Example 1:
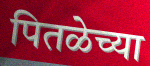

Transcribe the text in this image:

पितळेच्या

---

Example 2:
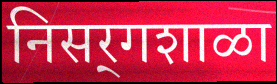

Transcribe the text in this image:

निसर्गशाळा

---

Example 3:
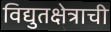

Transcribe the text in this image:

विद्युतक्षेत्राची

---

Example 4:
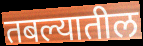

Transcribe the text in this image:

तबल्यातील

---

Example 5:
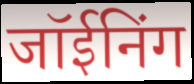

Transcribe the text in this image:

जॉईनिंग